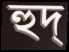
হুদ্